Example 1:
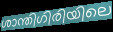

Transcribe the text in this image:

ശാന്തിഗിരിയിലെ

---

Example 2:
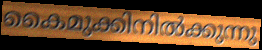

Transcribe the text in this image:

കൈമുക്കിനിൽക്കുന്നു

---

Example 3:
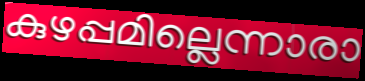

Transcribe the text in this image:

കുഴപ്പമില്ലെന്നാരാ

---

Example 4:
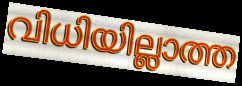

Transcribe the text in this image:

വിധിയില്ലാത്ത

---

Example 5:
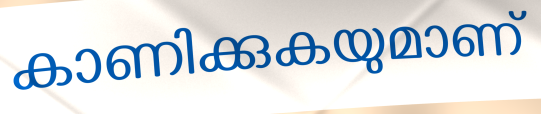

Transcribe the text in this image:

കാണിക്കുകയുമാണ്